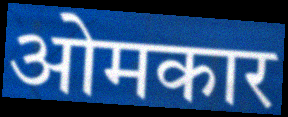
ओमकार